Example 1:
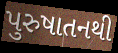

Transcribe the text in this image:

પુરુષાતનથી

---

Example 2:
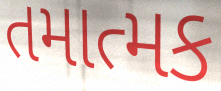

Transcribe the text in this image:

તમાત્મક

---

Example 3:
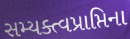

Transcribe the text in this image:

સમ્યક્ત્વપ્રાપ્તિના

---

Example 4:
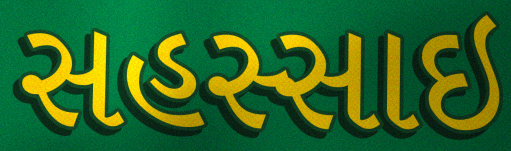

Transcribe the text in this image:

સહસ્સાઇ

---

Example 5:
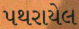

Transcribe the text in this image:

પથરાયેલ